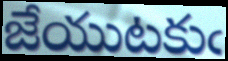
జేయుటకుఁ